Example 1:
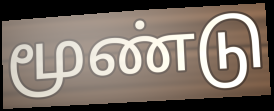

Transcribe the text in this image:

மூண்டு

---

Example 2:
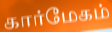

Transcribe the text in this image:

கார்மேகம்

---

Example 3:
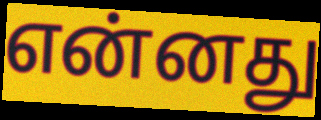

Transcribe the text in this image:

என்னது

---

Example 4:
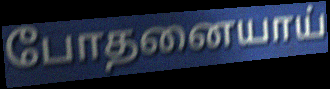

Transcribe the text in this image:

போதனையாய்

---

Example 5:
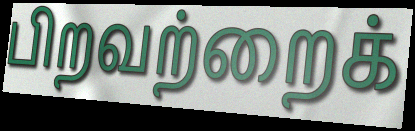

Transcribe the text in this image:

பிறவற்றைக்